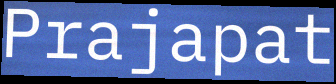
Prajapat